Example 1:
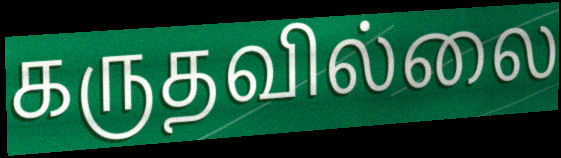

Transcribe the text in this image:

கருதவில்லை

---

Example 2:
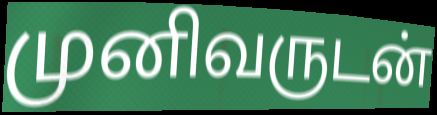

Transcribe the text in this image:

முனிவருடன்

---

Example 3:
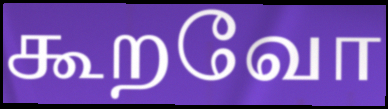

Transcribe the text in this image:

கூறவோ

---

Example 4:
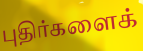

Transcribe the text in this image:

புதிர்களைக்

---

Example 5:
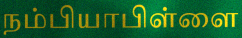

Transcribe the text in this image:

நம்பியாபிள்ளை